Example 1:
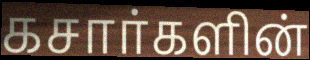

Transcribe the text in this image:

கசார்களின்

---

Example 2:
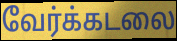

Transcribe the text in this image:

வேர்க்கடலை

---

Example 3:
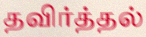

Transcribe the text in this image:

தவிர்த்தல்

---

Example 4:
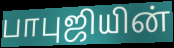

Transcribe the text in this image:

பாபுஜியின்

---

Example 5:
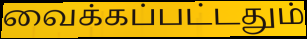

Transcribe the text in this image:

வைக்கப்பட்டதும்